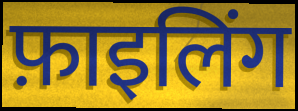
फ़ाइलिंग